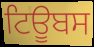
ਟਿਊਬਸ